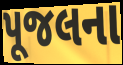
પૂજલના